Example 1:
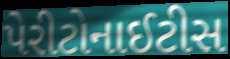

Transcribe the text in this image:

પેરીટોનાઈટીસ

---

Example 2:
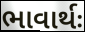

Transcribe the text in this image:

ભાવાર્થઃ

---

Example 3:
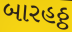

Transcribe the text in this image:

બારહઠ્ઠ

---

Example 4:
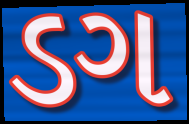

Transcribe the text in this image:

ડગ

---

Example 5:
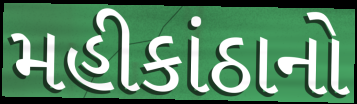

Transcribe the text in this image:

મહીકાંઠાનો